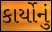
કાર્યોનું